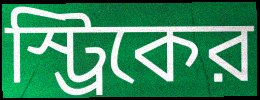
স্ট্রিকের